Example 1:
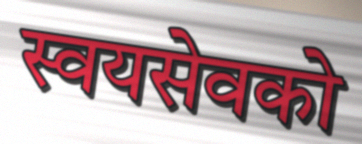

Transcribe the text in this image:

स्वयसेवको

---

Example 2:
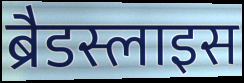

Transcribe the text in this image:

ब्रैडस्लाइस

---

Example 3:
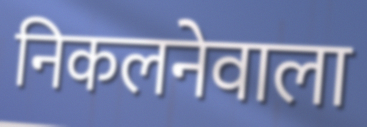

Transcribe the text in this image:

निकलनेवाला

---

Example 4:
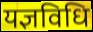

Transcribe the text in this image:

यज्ञविधि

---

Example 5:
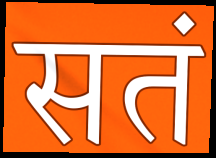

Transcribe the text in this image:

सतं